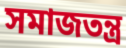
সমাজতন্ত্ৰ